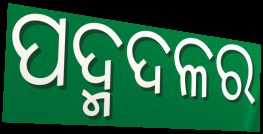
ପଦ୍ମଦଳର